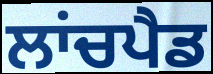
ਲਾਂਚਪੈਡ